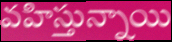
వహిస్తున్నాయి